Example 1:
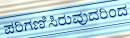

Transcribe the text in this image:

ಪರಿಗಣಿಸಿರುವುದರಿಂದ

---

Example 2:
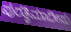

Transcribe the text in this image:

ಪುರತ್ಥಿಮಾದೀಸು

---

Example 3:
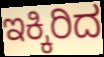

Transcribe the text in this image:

ಇಕ್ಕಿರಿದ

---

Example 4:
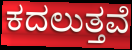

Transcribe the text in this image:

ಕದಲುತ್ತವೆ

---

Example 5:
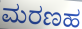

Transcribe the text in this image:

ಮರಣಹ